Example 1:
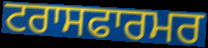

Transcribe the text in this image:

ਟਰਾਸਫਾਰਮਰ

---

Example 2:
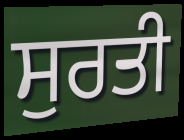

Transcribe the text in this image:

ਸੁਰਤੀ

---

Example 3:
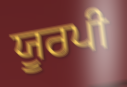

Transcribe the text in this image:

ਯੂਰਪੀ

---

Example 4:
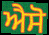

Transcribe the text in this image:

ਐਸੋ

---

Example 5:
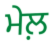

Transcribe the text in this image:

ਮੇਲ਼